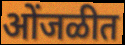
ओंजळीत